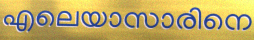
എലെയാസാരിനെ